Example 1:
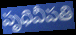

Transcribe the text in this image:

పృధివీపతి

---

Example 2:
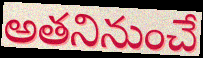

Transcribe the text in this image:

అతనినుంచే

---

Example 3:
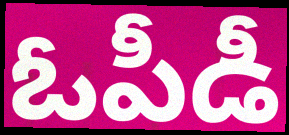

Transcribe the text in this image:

ఓపీడీ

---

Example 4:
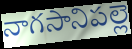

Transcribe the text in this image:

నాగసానిపల్లె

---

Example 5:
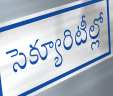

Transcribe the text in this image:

సెక్యూరిటీల్లో